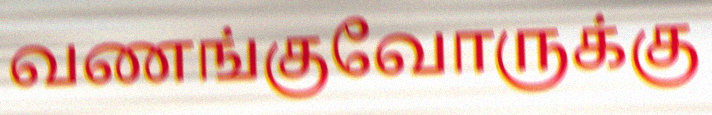
வணங்குவோருக்கு